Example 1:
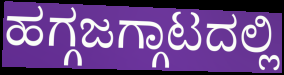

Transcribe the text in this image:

ಹಗ್ಗಜಗ್ಗಾಟದಲ್ಲಿ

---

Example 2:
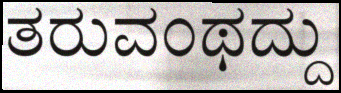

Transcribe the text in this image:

ತರುವಂಥದ್ದು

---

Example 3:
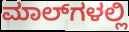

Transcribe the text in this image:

ಮಾಲ್‌ಗಳಲ್ಲಿ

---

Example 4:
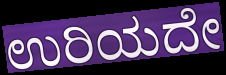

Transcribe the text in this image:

ಉರಿಯದೇ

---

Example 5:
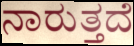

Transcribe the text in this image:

ನಾರುತ್ತದೆ